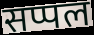
सप्पल